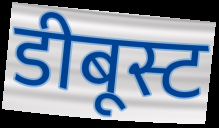
डीबूस्ट